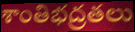
శాంతిభద్రతలు